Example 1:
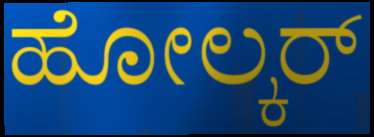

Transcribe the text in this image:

ಹೋಲ್ಕರ್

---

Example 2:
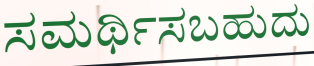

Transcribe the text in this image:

ಸಮರ್ಥಿಸಬಹುದು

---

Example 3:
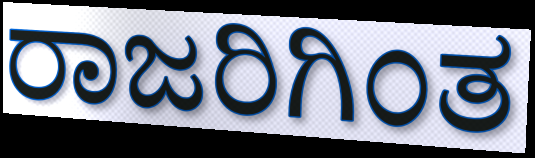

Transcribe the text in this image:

ರಾಜರಿಗಿಂತ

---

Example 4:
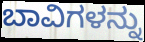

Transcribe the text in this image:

ಬಾವಿಗಳನ್ನು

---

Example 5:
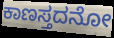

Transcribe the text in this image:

ಕಾಣಸ್ತದನೋ